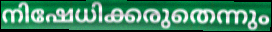
നിഷേധിക്കരുതെന്നും